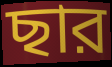
ছার